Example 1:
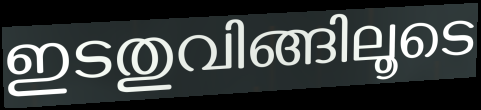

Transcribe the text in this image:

ഇടതുവിങ്ങിലൂടെ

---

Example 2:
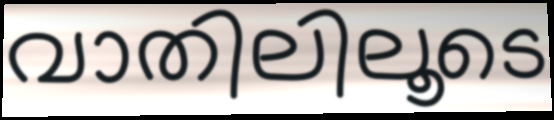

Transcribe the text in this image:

വാതിലിലൂടെ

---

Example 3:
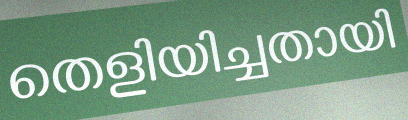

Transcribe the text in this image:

തെളിയിച്ചതായി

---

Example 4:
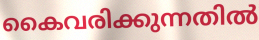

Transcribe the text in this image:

കൈവരിക്കുന്നതിൽ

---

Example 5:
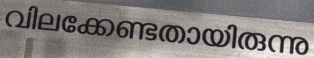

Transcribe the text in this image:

വിലക്കേണ്ടതായിരുന്നു